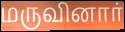
மருவினார்